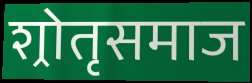
श्रोतृसमाज